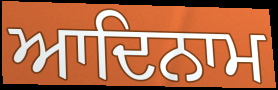
ਆਦਿਨਾਮ